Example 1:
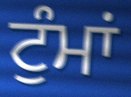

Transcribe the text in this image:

ਟੁੰਮਾਂ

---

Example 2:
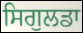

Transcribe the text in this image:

ਸਿਗੁਲਡਾ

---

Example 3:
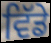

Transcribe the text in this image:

ਵਿੱਡੇ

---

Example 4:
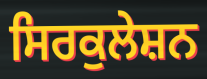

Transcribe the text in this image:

ਸਿਰਕੁਲੇਸ਼ਨ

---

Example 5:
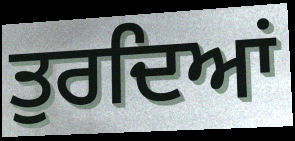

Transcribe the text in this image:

ਤੁਰਦਿਆਂ